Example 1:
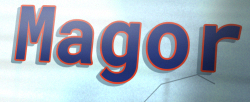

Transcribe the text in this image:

Magor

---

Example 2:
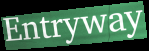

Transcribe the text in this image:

Entryway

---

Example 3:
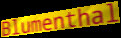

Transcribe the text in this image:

Blumenthal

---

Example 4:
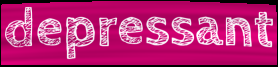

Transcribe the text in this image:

depressant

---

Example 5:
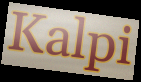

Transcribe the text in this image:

Kalpi